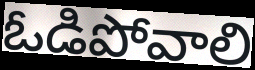
ఓడిపోవాలి